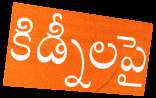
కిడ్నీలపై